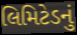
લિમિટેડનું